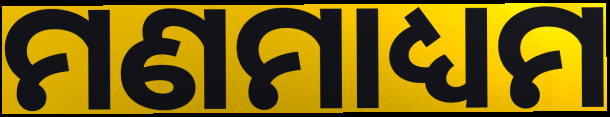
ମଣମାଧ୍ୟମ